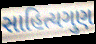
સાહિત્યગુણ